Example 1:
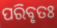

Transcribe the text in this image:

ପରିବୃତଃ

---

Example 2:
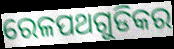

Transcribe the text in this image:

ରେଳପଥଗୁଡିକର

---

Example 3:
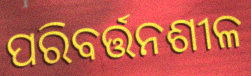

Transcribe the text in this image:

ପରିବର୍ତ୍ତନଶୀଳ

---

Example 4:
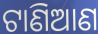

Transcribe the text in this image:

ଟାଣିଆଣ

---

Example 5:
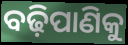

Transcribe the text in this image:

ବଢ଼ିପାଣିକୁ